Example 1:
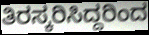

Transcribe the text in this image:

ತಿರಸ್ಕರಿಸಿದ್ದರಿಂದ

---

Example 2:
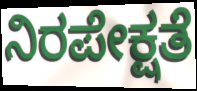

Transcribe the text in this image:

ನಿರಪೇಕ್ಷತೆ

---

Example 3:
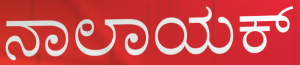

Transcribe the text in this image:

ನಾಲಾಯಕ್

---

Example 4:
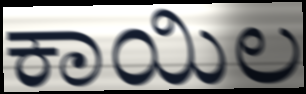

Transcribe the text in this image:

ಕಾಯಿಲ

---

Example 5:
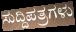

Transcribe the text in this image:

ಸುದ್ದಿಪತ್ರಗಳು